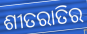
ଶୀତରାତିର